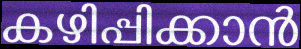
കഴിപ്പിക്കാൻ